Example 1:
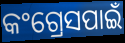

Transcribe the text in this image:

କଂଗ୍ରେସପାଇଁ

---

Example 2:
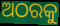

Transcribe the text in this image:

ଅଠରକୁ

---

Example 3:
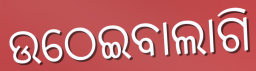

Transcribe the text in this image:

ଉଠେଇବାଲାଗି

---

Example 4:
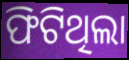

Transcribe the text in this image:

ଫିଟିଥିଲା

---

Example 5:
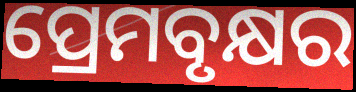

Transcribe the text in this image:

ପ୍ରେମବୃକ୍ଷର